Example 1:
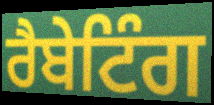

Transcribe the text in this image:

ਰੈਬੇਟਿੰਗ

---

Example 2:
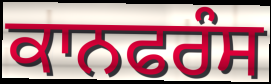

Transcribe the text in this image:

ਕਾਨਫਰੰਸ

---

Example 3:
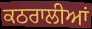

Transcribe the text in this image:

ਕਠਰਾਲੀਆਂ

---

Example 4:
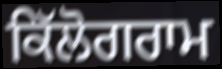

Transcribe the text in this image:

ਕਿੱਲੋਗਰਾਮ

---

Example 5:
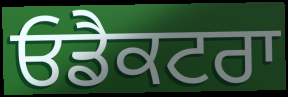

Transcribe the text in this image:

ਓਡੈਕਟਰਾ